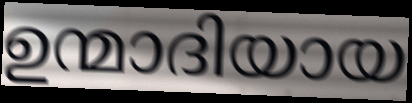
ഉന്മാദിയായ